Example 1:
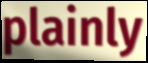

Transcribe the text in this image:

plainly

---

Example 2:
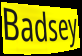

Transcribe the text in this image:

Badsey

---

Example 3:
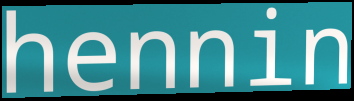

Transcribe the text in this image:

hennin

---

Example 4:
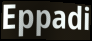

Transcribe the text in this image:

Eppadi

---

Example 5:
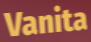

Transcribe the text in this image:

Vanita